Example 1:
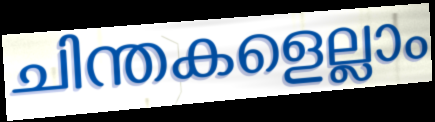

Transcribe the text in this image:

ചിന്തകളെല്ലാം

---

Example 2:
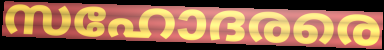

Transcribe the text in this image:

സഹോദരരെ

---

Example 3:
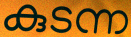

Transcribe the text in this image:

കുടന്ന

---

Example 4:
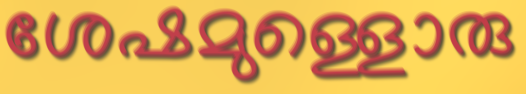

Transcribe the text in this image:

ശേഷമുള്ളൊരു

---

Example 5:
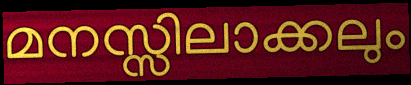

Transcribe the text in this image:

മനസ്സിലാക്കലും